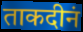
ताकदीनं